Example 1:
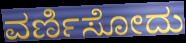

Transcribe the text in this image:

ವರ್ಣಿಸೋದು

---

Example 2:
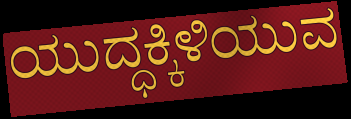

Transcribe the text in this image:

ಯುದ್ಧಕ್ಕಿಳಿಯುವ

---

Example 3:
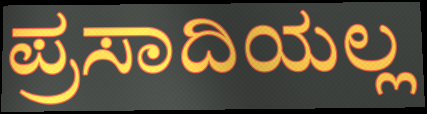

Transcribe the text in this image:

ಪ್ರಸಾದಿಯಲ್ಲ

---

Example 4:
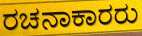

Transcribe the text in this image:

ರಚನಾಕಾರರು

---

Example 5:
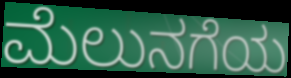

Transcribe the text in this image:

ಮೆಲುನಗೆಯ